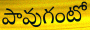
పావుగంటో